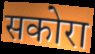
सकोरा